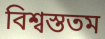
বিশ্বস্ততম